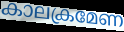
കാലക്രമേണ